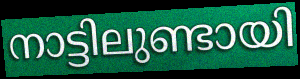
നാട്ടിലുണ്ടായി